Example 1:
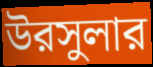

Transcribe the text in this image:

উরসুলার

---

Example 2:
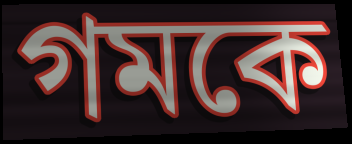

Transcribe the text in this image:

গমকে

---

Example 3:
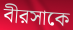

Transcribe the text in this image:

বীরসাকে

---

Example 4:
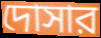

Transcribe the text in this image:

দোসার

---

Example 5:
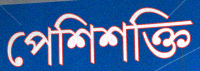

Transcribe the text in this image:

পেশিশক্তি